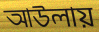
আউলায়